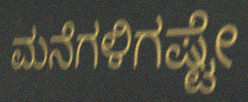
ಮನೆಗಳಿಗಷ್ಟೇ